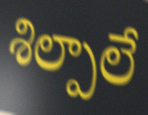
శిల్పాలే